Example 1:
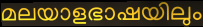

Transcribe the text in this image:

മലയാളഭാഷയിലും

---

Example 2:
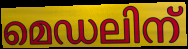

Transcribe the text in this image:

മെഡലിന്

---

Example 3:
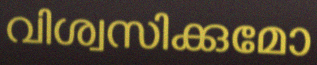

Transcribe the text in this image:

വിശ്വസിക്കുമോ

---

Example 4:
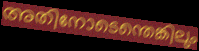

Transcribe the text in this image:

അതിനോടെന്തെങ്കിലും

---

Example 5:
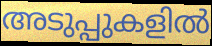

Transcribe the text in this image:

അടുപ്പുകളിൽ